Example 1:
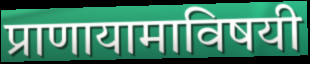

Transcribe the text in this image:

प्राणायामाविषयी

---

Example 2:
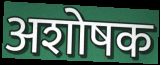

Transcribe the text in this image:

अशोषक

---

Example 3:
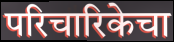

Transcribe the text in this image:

परिचारिकेचा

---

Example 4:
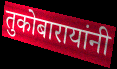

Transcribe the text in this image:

तुकोबारायांनी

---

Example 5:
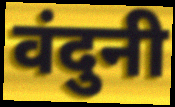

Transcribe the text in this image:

वंदुनी